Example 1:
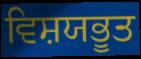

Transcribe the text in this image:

ਵਿਸ਼ਯਭੂਤ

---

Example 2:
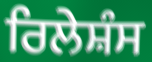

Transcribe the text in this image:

ਰਿਲੇਸ਼ੰਸ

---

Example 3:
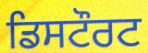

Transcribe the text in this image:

ਡਿਸਟੌਰਟ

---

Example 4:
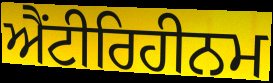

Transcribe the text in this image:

ਐਂਟੀਰਿਹੀਨਮ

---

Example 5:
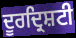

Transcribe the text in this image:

ਦੂਰਦ੍ਰਿਸ਼ਟੀ